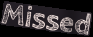
Missed